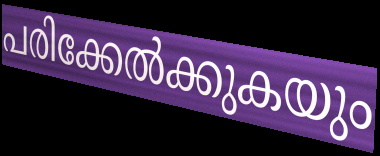
പരിക്കേൽക്കുകയും